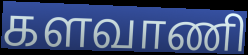
களவாணி